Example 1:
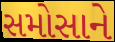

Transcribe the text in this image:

સમોસાને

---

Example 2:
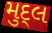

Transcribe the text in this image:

મુદ્લ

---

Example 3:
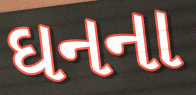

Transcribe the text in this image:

ઘનના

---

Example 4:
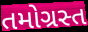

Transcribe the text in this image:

તમોગ્રસ્ત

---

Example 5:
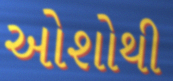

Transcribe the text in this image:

ઓશોથી